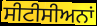
ਸੀਟੀਸੀਅਨਾਂ